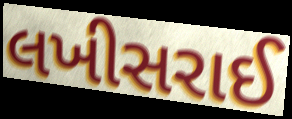
લખીસરાઈ